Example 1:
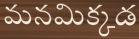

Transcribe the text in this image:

మనమిక్కడ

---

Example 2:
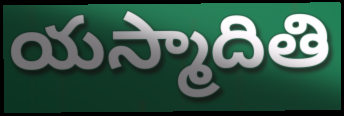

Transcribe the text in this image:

యస్మాదితి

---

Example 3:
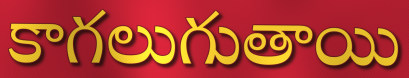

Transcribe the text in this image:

కాగలుగుతాయి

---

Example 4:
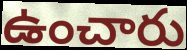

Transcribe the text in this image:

ఉంచారు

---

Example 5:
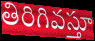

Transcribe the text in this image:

తిరిగివస్తూ